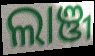
ଲାଞ୍ଜ